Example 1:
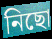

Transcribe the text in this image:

নিছো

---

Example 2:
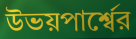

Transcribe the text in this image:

উভয়পার্শ্বের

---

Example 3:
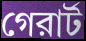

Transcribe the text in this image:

গেরার্ট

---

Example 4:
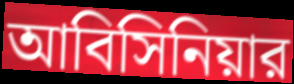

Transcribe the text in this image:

আবিসিনিয়ার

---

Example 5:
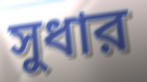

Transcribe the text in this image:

সুধার